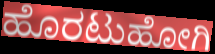
ಹೊರಟುಹೋಗಿ